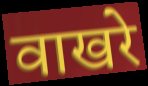
वाखरे